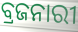
ବ୍ରଜନାରୀ